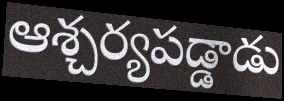
ఆశ్చర్యపడ్డాడు